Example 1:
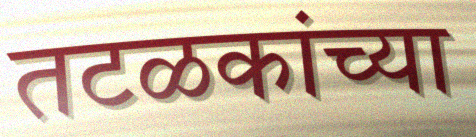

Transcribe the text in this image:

तटळकांच्या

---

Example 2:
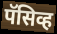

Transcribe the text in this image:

पॅसिव्ह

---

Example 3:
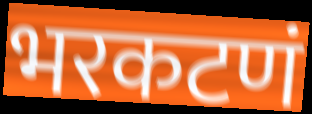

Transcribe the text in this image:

भरकटणं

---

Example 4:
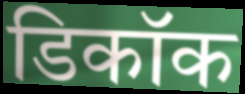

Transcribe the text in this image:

डिकॉक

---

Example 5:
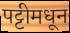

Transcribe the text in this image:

पट्टीमधून